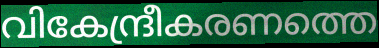
വികേന്ദ്രീകരണത്തെ